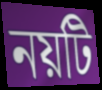
নয়টি